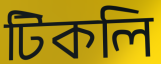
টিকলি